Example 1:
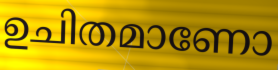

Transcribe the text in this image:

ഉചിതമാണോ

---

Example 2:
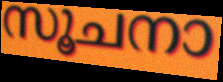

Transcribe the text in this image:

സൂചനാ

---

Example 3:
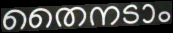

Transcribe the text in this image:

തൈനടാം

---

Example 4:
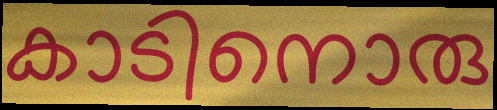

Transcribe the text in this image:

കാടിനൊരു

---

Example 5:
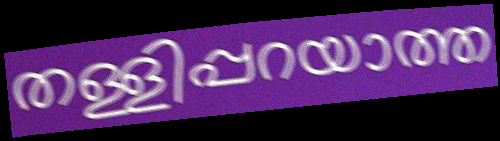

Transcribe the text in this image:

തള്ളിപ്പറയാത്ത